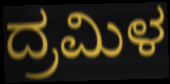
ದ್ರಮಿಳ